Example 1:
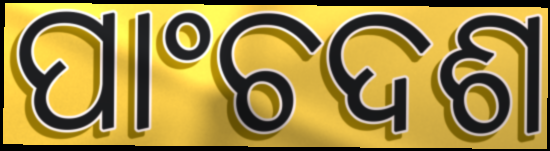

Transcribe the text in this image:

ପାଂଚଦଶ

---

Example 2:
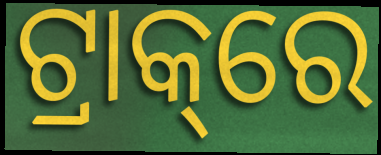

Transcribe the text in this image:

ଟ୍ରାକ୍‌ରେ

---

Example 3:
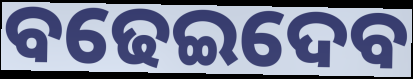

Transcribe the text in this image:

ବଢେଇଦେବ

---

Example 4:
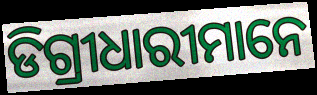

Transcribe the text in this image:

ଡିଗ୍ରୀଧାରୀମାନେ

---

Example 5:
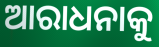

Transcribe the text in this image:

ଆରାଧନାକୁ